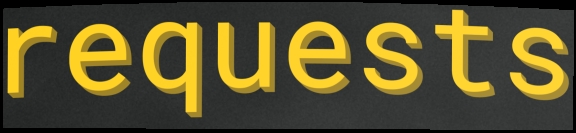
requests